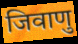
जिवाणु